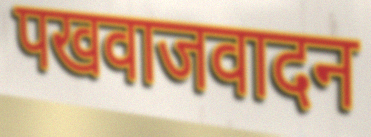
पखवाजवादन